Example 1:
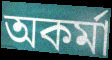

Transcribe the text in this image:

অকর্মা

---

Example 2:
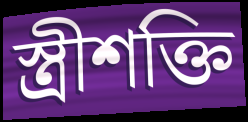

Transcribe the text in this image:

স্ত্রীশক্তি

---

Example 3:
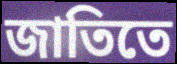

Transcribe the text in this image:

জাতিতে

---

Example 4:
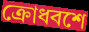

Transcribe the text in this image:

ক্রোধবশে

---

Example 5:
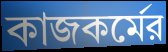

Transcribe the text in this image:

কাজকর্মের